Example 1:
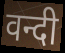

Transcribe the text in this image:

वन्दी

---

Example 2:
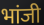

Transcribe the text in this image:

भांजी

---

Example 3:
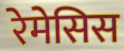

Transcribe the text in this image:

रेमेसिस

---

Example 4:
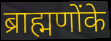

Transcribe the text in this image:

ब्राह्मणोंके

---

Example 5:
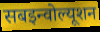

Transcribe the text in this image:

सबइन्वोल्यूशन